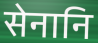
सेनानि